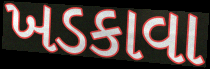
ખડકાવા